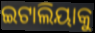
ଇଟାଲିୟାକୁ